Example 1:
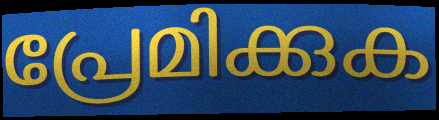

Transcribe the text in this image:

പ്രേമിക്കുക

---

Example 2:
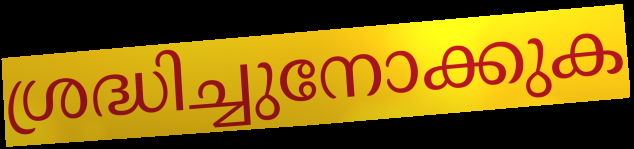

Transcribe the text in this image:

ശ്രദ്ധിച്ചുനോക്കുക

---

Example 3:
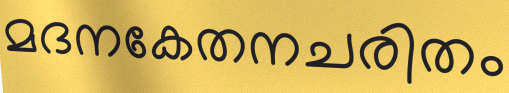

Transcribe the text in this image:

മദനകേതനചരിതം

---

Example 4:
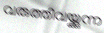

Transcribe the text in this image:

വരുത്തിവയ്ക്കുന്ന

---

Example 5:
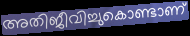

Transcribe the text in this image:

അതിജീവിച്ചുകൊണ്ടാണ്